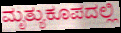
ಮೃತ್ಯುಕೂಪದಲ್ಲಿ